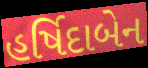
હર્ષિદાબેન